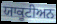
ਯਾਕੂਟੀਅਨ